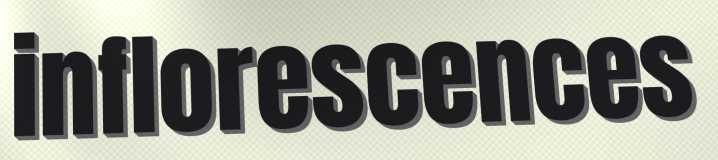
inflorescences